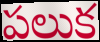
పలుక